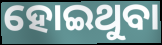
ହୋଇଥୁବା